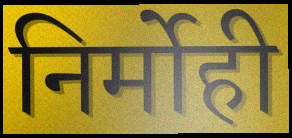
निर्मोही